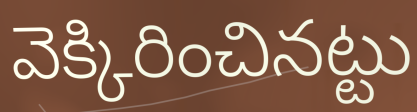
వెక్కిరించినట్టు